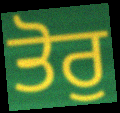
ਤੋਰੁ